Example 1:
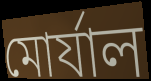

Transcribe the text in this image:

মোর্যাল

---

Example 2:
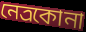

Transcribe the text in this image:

নেত্রকোনা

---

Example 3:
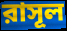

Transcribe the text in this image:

রাসূল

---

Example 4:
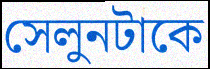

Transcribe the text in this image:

সেলুনটাকে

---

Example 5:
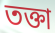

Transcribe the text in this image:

তক্তা